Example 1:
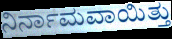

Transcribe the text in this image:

ನಿರ್ನಾಮವಾಯಿತ್ತು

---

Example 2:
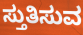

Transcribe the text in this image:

ಸ್ತುತಿಸುವ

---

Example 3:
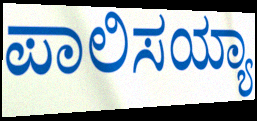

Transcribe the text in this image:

ಪಾಲಿಸಯ್ಯಾ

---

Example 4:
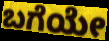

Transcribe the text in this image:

ಬಗೆಯೇ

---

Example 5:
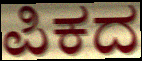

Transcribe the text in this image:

ಪಿಕದ